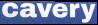
cavery